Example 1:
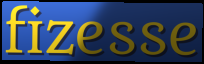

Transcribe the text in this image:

fizesse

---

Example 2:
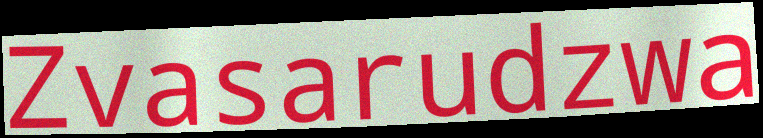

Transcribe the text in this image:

Zvasarudzwa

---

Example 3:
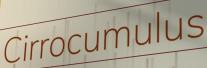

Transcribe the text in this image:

Cirrocumulus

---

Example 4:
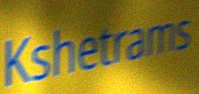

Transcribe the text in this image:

Kshetrams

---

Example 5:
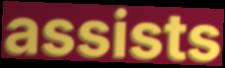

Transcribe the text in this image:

assists